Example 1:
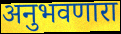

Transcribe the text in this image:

अनुभवणारा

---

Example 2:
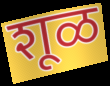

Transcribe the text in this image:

शूळ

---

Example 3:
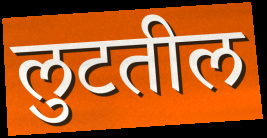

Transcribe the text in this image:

लुटतील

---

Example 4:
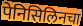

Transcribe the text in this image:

पेनिसिलिनचा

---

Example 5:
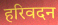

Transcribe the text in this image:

हरिवदन